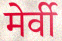
मेर्वी